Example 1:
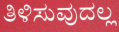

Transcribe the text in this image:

ತಿಳಿಸುವುದಲ್ಲ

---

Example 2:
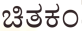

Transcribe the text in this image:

ಚಿತಕಂ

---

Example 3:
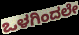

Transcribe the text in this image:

ಒಳಗಿಂದಲೇ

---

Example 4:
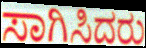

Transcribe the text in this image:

ಸಾಗಿಸಿದರು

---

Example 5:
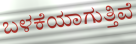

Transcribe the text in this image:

ಬಳಕೆಯಾಗುತ್ತಿವೆ